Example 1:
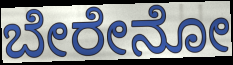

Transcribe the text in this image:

ಬೇರೇನೋ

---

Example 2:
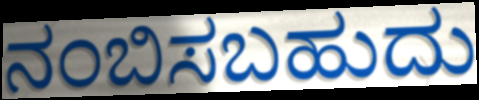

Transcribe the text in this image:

ನಂಬಿಸಬಹುದು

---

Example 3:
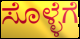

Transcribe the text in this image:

ಸೊಳ್ಳೆಗೆ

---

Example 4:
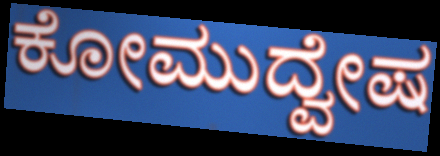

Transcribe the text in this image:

ಕೋಮುದ್ವೇಷ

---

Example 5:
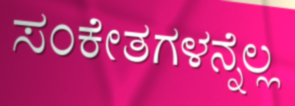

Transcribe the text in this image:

ಸಂಕೇತಗಳನ್ನೆಲ್ಲ